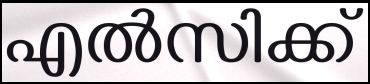
എൽസിക്ക്